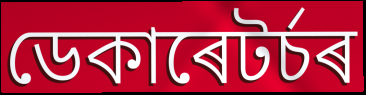
ডেকাৰেটৰ্চৰ